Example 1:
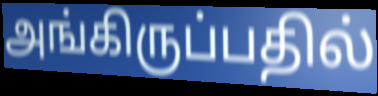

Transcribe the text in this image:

அங்கிருப்பதில்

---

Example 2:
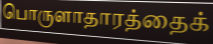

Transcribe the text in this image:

பொருளாதாரத்தைக்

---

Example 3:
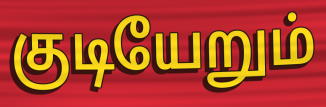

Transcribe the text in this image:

குடியேறும்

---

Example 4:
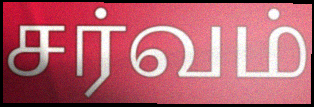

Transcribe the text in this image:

சர்வம்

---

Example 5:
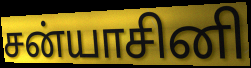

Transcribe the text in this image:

சன்யாசினி